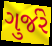
ગુર્જરે